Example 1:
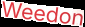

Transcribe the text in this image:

Weedon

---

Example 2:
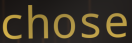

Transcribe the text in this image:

chose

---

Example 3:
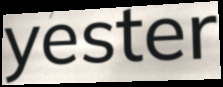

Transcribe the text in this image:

yester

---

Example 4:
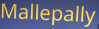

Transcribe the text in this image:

Mallepally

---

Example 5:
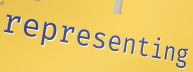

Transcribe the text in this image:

representing